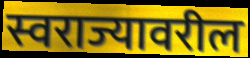
स्वराज्यावरील